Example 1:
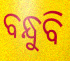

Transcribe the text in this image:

ବନ୍ଧୁବି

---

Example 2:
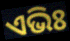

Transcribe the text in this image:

ଏଭିଃ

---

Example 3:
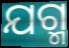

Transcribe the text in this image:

ଯଗ୍ମ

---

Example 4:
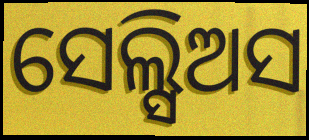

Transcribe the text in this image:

ସେଲ୍ସିଅସ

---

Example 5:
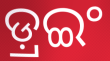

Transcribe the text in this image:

ଡ଼୍ରଇଂ